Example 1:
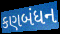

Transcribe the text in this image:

કણબંધન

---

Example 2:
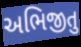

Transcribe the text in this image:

અભિજીતુ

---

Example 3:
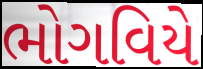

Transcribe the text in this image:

ભોગવિયે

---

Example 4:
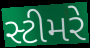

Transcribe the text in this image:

સ્ટીમરે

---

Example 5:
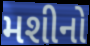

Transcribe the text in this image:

મશીનો